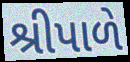
શ્રીપાળે